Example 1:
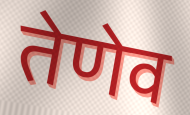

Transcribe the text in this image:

तेणेव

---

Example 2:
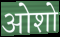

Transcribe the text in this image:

ओशो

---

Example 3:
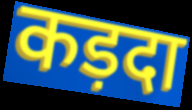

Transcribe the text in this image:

कड़दा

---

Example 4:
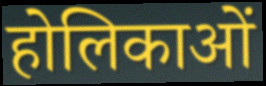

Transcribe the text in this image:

होलिकाओं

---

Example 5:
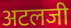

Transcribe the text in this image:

अटलजी